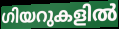
ഗിയറുകളിൽ